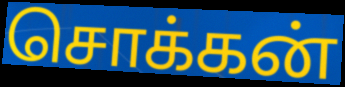
சொக்கன்